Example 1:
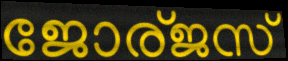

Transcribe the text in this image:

ജോര്ജസ്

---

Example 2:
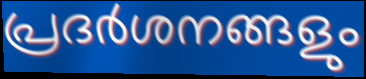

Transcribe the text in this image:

പ്രദർശനങ്ങളും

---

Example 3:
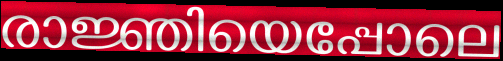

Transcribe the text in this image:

രാജ്ഞിയെപ്പോലെ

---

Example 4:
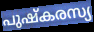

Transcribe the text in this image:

പുഷ്കരസ്യ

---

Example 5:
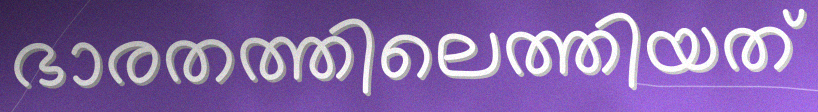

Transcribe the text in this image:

ഭാരതത്തിലെത്തിയത്